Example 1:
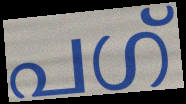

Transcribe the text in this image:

പഗ്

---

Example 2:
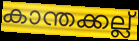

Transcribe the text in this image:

കാന്തക്കല്ല്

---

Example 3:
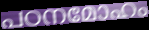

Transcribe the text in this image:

പഠനമോഹം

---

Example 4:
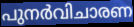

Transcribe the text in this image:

പുനർവിചാരണ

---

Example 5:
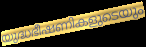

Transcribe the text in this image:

യുദ്ധഭീഷണികളുടെയും